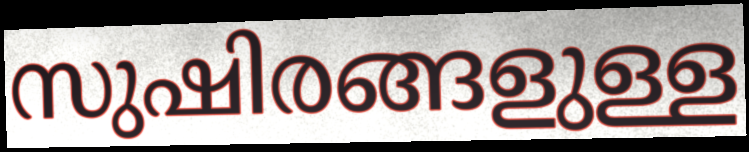
സുഷിരങ്ങളുള്ള